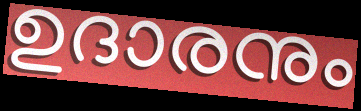
ഉദാരനും